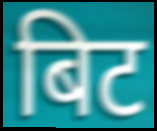
बिट